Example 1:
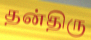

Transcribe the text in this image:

தன்திரு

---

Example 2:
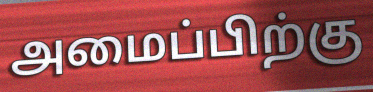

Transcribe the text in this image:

அமைப்பிற்கு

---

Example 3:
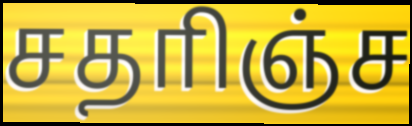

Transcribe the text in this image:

சதரிஞ்ச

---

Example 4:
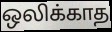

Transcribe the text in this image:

ஒலிக்காத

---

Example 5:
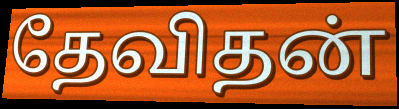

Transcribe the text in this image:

தேவிதன்